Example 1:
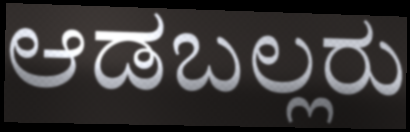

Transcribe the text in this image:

ಆಡಬಲ್ಲರು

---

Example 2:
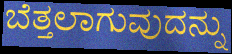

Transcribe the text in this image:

ಬೆತ್ತಲಾಗುವುದನ್ನು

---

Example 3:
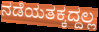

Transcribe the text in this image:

ನಡೆಯತಕ್ಕದ್ದಲ್ಲ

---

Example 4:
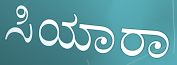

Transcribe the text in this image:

ಸಿಯಾರಾ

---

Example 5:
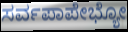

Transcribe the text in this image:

ಸರ್ವಪಾಪೇಭ್ಯೋ